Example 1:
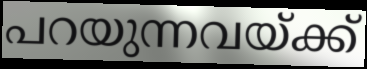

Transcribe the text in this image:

പറയുന്നവയ്ക്ക്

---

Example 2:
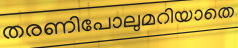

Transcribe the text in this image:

തരണിപോലുമറിയാതെ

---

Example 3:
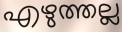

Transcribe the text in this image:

എഴുത്തല്ല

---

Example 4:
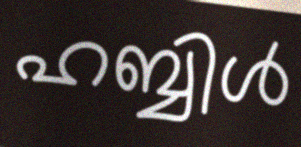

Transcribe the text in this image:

ഹബ്ബിൾ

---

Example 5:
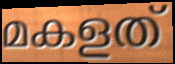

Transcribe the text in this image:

മകളത്